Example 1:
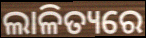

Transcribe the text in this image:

ଲାଳିତ୍ୟରେ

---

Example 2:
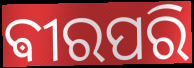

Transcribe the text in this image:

ଵୀରପରି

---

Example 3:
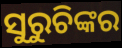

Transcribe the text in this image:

ସୁରୁଚିଙ୍କର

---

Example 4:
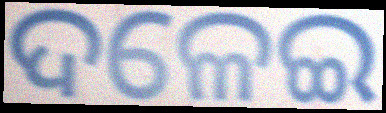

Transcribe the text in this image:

ଦଳେଇ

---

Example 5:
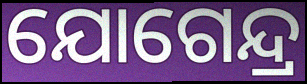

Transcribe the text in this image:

ଯୋଗେନ୍ଦ୍ର